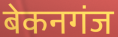
बेकनगंज